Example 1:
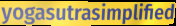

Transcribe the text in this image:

yogasutrasimplified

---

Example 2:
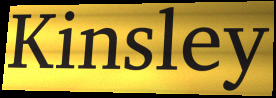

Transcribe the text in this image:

Kinsley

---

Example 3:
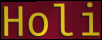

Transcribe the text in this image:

Holi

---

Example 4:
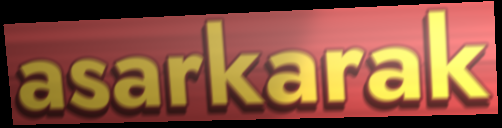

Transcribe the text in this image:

asarkarak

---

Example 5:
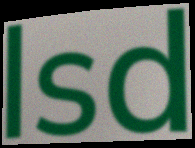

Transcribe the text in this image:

lsd